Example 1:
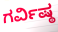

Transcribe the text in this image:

ಗರ್ವಿಷ್ಠ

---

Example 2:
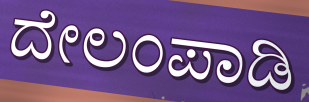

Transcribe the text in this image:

ದೇಲಂಪಾಡಿ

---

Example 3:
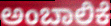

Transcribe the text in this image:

ಅಂಬಾಲಿಕೆ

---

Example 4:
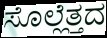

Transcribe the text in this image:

ಸೊಲ್ಲೆತ್ತದ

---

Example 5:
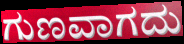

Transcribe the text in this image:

ಗುಣವಾಗದು